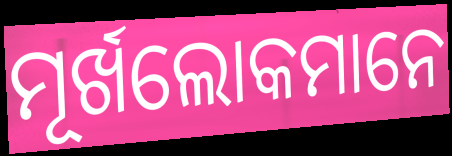
ମୂର୍ଖଲୋକମାନେ